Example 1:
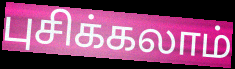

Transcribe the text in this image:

புசிக்கலாம்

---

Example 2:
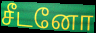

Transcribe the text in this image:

சீடனோ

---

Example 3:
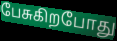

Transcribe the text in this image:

பேசுகிறபோது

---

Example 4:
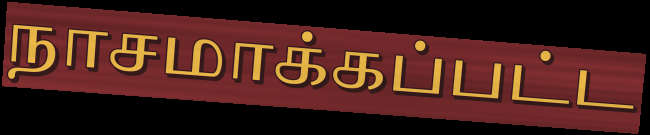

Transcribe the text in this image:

நாசமாக்கப்பட்ட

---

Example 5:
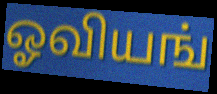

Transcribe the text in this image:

ஓவியங்